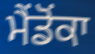
ਮੈਂਡੋਂਕਾ